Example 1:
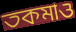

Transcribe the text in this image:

তকমাও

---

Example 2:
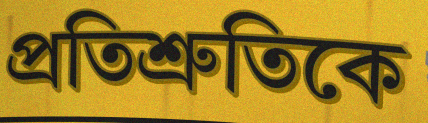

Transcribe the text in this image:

প্রতিশ্রুতিকে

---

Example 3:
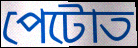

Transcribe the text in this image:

পেটোত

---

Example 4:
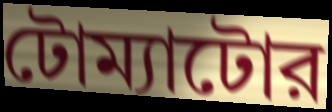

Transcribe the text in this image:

টোম্যাটোর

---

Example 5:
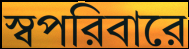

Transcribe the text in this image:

স্বপরিবারে